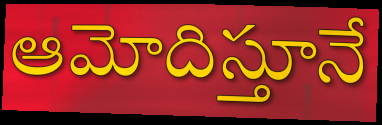
ఆమోదిస్తూనే